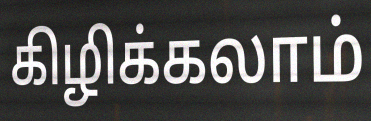
கிழிக்கலாம்